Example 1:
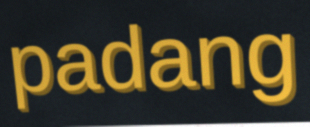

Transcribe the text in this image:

padang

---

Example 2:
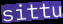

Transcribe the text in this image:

sittu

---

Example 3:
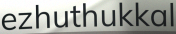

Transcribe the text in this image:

ezhuthukkal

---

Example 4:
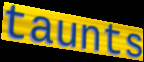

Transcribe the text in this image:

taunts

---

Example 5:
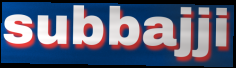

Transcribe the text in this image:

subbajji